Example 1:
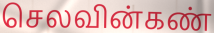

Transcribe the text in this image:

செலவின்கண்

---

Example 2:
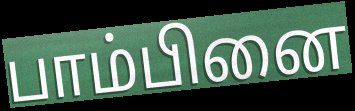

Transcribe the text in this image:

பாம்பினை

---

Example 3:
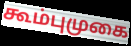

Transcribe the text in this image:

கூம்புமுகை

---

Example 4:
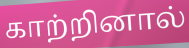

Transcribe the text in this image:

காற்றினால்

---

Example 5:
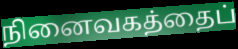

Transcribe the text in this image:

நினைவகத்தைப்